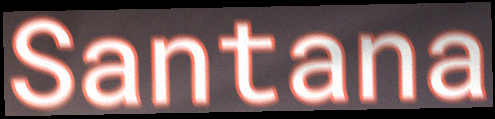
Santana